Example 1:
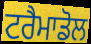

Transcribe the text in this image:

ਟਰੈਮਾਡੋਲ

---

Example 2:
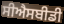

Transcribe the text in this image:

ਸੀਐਸਬੀਡੀ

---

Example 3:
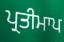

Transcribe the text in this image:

ਪ੍ਰਤੀਮਾਪ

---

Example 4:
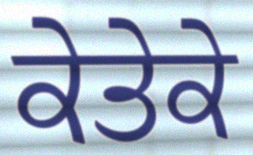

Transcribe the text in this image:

ਕੇਤੇਕੇ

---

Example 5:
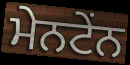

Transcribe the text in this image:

ਮੇਨਟੇਂਨ